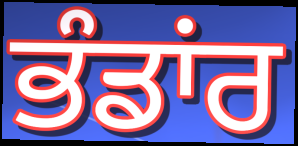
ਭੰਡਾਂਰ